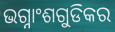
ଭଗ୍ନାଂଶଗୁଡିକର